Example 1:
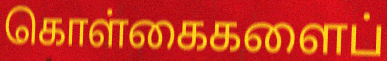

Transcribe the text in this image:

கொள்கைகளைப்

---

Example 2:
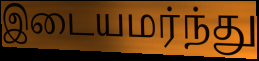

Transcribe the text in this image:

இடையமர்ந்து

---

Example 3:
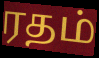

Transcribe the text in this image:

ரதம்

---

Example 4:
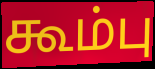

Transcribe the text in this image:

கூம்பு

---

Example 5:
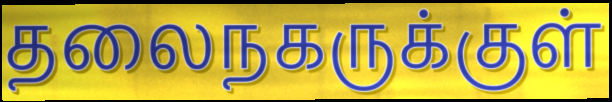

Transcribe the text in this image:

தலைநகருக்குள்